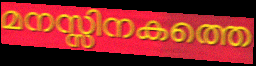
മനസ്സിനകത്തെ